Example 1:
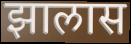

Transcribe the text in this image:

झालास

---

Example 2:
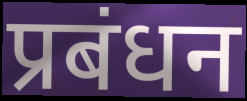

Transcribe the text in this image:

प्रबंधन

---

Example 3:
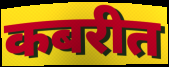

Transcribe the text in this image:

कबरीत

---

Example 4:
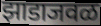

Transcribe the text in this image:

झाडाजवळ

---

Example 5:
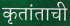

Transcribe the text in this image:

कृतांताची